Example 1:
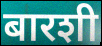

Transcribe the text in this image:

बारशी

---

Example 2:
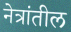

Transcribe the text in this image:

नेत्रांतील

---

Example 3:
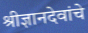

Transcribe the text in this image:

श्रीज्ञानदेवांचे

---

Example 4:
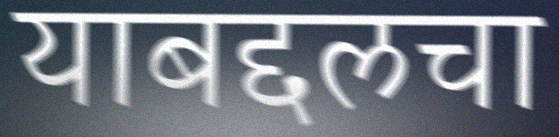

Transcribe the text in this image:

याबद्दलचा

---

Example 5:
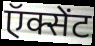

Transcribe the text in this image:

ऍक्सेंट